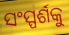
ସଂସ୍ପର୍ଶକୁ